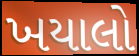
ખયાલો